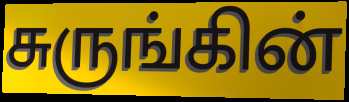
சுருங்கின்